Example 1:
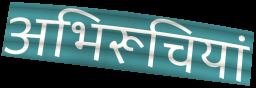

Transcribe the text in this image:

अभिरूचियां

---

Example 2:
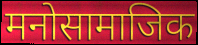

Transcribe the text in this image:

मनोसामाजिक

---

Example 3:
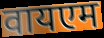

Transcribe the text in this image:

वायएम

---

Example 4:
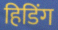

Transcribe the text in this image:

हिडिंग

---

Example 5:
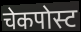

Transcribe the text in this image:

चेकपोस्ट